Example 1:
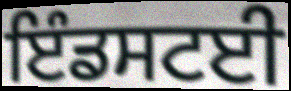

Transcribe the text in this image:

ਇੰਡਸਟਈ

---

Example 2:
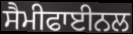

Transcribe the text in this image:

ਸੈਮੀਫਾਈਨਲ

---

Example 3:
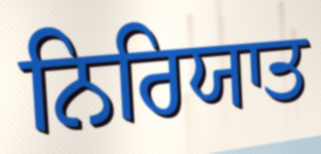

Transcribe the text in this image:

ਨਿਰਿਯਾਤ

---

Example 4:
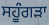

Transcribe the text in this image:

ਸਹੂੰਗੜਾ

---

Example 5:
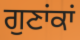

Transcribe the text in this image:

ਗੁਣਾਂਕਾਂ